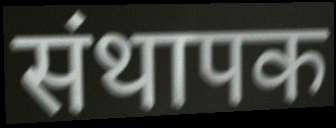
संथापक